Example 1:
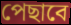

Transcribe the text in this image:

পেছাবে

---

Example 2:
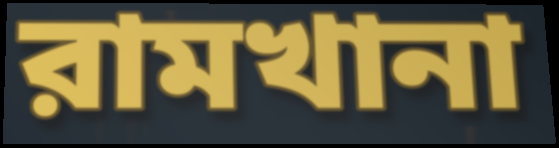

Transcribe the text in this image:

রামখানা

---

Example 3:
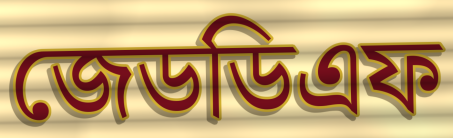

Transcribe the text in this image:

জেডডিএফ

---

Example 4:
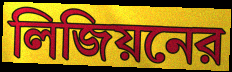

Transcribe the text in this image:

লিজিয়নের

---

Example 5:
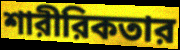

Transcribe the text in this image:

শারীরিকতার